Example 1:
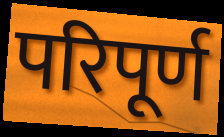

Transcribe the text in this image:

परिपूर्ण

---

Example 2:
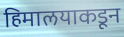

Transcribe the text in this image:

हिमालयाकडून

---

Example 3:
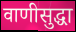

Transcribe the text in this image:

वाणीसुद्धा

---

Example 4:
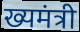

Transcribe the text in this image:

ख्यमंत्री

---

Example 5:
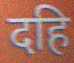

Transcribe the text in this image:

दहि